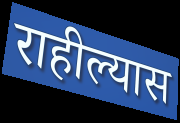
राहील्यास